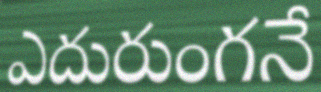
ఎదురుంగనే